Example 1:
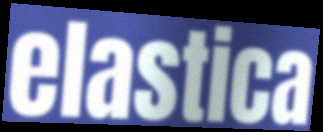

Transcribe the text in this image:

elastica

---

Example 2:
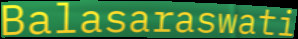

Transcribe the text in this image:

Balasaraswati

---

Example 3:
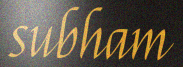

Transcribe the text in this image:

subham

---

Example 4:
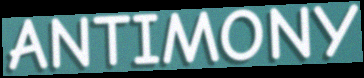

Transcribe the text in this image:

ANTIMONY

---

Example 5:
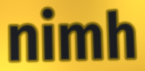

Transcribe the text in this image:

nimh